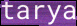
tarya